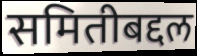
समितीबद्दल